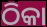
ଠିକା